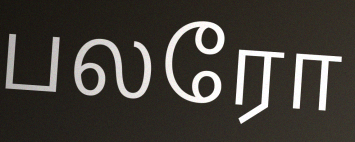
பலரோ